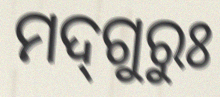
ମଦ୍‌ଗୁରୁଃ